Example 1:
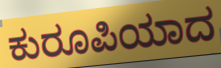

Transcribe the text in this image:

ಕುರೂಪಿಯಾದ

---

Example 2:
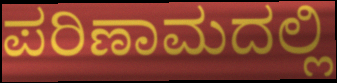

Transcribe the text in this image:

ಪರಿಣಾಮದಲ್ಲಿ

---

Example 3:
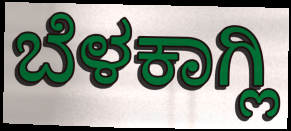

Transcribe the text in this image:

ಬೆಳಕಾಗ್ಲಿ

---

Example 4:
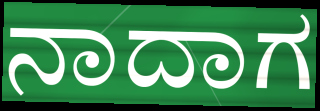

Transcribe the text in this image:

ನಾದಾಗ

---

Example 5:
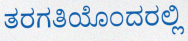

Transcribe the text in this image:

ತರಗತಿಯೊಂದರಲ್ಲಿ